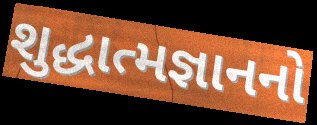
શુદ્ધાત્મજ્ઞાનનો